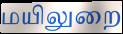
மயிலுறை